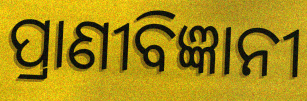
ପ୍ରାଣୀବିଜ୍ଞାନୀ